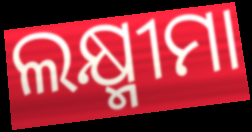
ଲକ୍ଷ୍ମୀମା